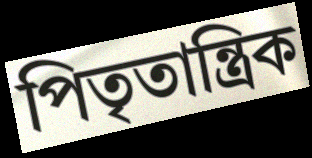
পিতৃতান্ত্রিক